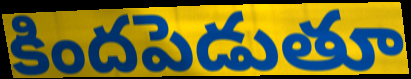
కిందపెడుతూ